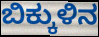
ಬಿಕ್ಕುಳಿನ